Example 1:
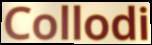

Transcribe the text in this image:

Collodi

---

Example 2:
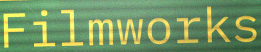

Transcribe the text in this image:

Filmworks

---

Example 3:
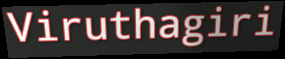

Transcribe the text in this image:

Viruthagiri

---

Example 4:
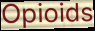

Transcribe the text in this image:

Opioids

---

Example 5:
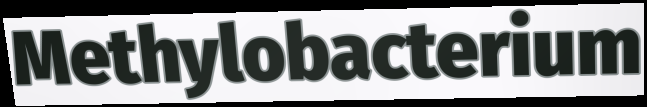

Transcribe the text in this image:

Methylobacterium